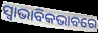
ସ୍ୱାଭାବିକଭାବରେ